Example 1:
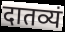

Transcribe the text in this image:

दातव्यं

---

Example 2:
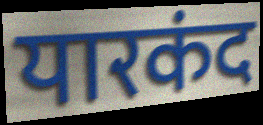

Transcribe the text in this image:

यारकंद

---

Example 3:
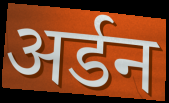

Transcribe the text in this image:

अर्डन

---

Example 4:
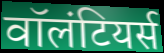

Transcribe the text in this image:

वॉलंटियर्स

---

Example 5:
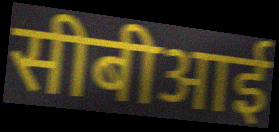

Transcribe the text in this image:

सीबीआई